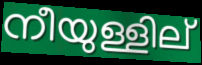
നീയുള്ളില്